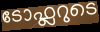
ടോഫ്ലറുടെ